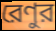
রেণুর